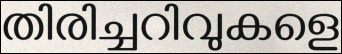
തിരിച്ചറിവുകളെ